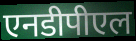
एनडीपीएल